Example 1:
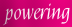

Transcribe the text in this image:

powering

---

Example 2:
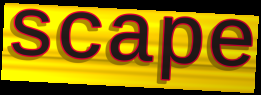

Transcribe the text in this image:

scape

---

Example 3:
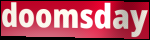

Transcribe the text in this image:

doomsday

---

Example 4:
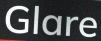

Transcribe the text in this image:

Glare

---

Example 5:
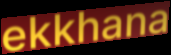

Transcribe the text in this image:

ekkhana